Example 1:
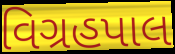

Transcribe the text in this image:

વિગ્રહપાલ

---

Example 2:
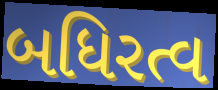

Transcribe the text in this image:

બધિરત્વ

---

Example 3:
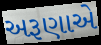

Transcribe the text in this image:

અરૂણાએ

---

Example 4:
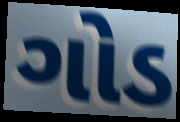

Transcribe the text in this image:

ગોડ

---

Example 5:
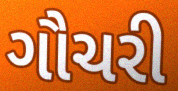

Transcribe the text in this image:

ગૌચરી